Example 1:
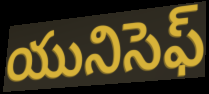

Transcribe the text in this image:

యునిసెఫ్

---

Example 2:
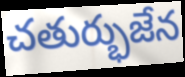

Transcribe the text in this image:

చతుర్భుజేన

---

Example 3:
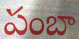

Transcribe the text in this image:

పంబా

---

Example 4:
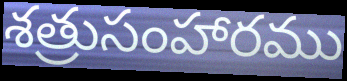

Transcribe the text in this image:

శత్రుసంహారము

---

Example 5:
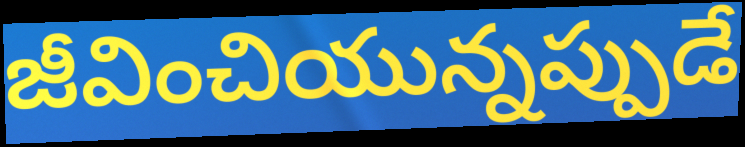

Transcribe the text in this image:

జీవించియున్నప్పుడే